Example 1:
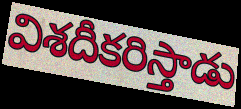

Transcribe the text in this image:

విశదీకరిస్తాడు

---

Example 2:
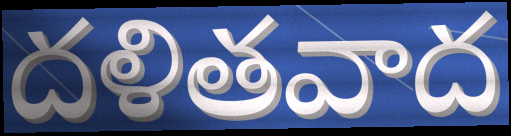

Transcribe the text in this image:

దళితవాద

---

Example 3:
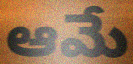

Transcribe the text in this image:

ఆమే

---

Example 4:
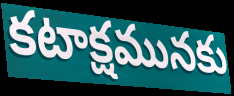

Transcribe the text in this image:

కటాక్షమునకు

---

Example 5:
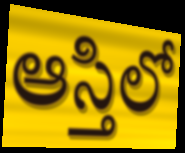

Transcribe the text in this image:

ఆస్తిలో